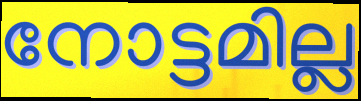
നോട്ടമില്ല